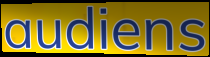
audiens